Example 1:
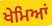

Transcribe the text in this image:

ਖੇਮਿਆਂ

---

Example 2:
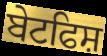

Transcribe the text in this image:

ਬੇਟਫਿਸ਼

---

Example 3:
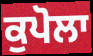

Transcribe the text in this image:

ਕੁਪੋਲਾ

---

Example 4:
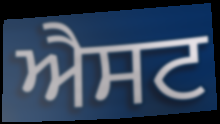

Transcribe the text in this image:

ਐਸਟ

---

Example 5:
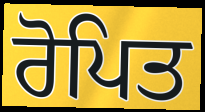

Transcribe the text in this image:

ਰੋਪਿਤ